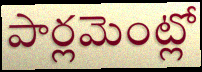
పార్లమెంట్లో